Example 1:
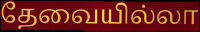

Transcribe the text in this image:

தேவையில்லா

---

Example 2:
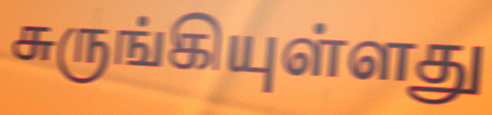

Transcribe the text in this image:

சுருங்கியுள்ளது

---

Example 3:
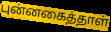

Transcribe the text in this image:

புன்னகைத்தாள்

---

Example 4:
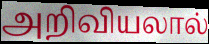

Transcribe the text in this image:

அறிவியலால்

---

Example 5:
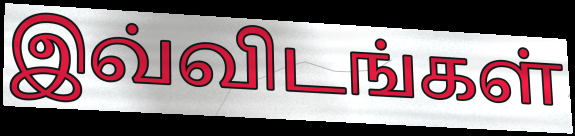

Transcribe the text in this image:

இவ்விடங்கள்